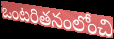
ఒంటరితనంలోంచి